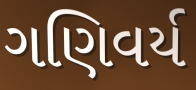
ગણિવર્ય